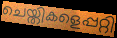
ചെയ്തികളെപ്പറ്റി